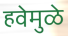
हवेमुळे